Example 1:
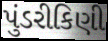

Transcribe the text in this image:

પુંડરીકિણી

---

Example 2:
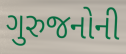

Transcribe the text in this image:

ગુરુજનોની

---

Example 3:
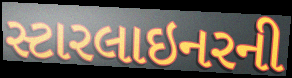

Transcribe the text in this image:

સ્ટારલાઇનરની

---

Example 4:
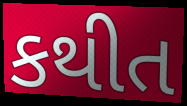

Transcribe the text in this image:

કથીત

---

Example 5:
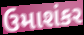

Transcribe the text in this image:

ઉમાશંકર